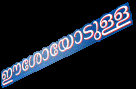
ഈശോയോടുള്ള